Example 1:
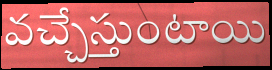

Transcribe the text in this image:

వచ్చేస్తుంటాయి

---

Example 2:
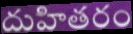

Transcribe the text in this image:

దుహితరం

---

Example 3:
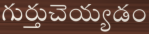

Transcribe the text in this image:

గుర్తుచెయ్యడం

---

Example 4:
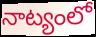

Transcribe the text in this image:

నాట్యంలో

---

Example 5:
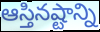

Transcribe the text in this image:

ఆస్తినష్టాన్ని